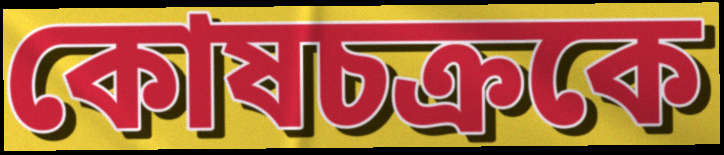
কোষচক্রকে